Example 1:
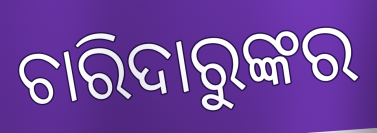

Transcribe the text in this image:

ଚାରିଦାରୁଙ୍କର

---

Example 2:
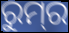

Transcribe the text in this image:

ରୁମ୍‍ର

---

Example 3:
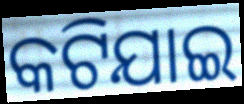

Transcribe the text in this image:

କଟିଯାଇ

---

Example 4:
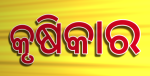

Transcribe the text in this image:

କୃଷିକାର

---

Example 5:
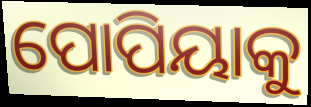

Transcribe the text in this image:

ପୋପିୟାକୁ